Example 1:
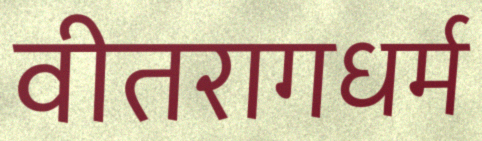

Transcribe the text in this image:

वीतरागधर्म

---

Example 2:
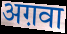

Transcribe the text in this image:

अग़वा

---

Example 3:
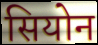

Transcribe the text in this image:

सियोन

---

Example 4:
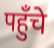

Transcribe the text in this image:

पहुँचे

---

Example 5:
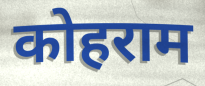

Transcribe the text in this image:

कोहराम